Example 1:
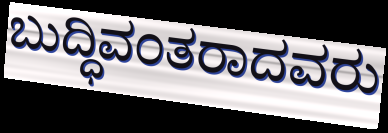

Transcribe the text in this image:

ಬುದ್ಧಿವಂತರಾದವರು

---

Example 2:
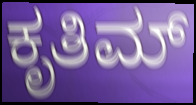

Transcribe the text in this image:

ಕೃತಿಮ್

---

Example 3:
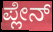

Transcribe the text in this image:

ಪ್ಲೇನ್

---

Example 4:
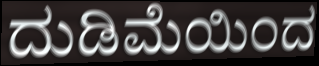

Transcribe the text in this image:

ದುಡಿಮೆಯಿಂದ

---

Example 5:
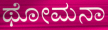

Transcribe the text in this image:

ಥೋಮನಾ